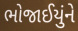
ભોજાઈયુંને